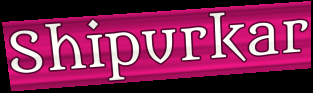
Shipurkar